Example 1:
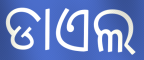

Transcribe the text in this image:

ଡାଏଲ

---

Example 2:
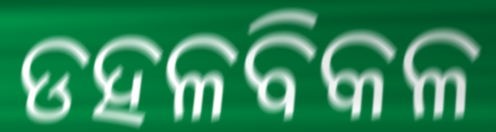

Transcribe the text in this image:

ଡହଳବିକଳ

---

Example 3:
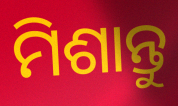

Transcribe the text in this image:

ମିଶାନ୍ତୁ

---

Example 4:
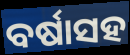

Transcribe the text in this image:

ବର୍ଷାସହ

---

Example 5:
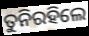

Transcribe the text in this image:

ତୁନିରହିଲେ